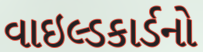
વાઇલ્ડકાર્ડનો